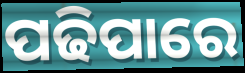
ପଢିପାରେ